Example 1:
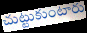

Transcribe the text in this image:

చుట్టుకుంటారు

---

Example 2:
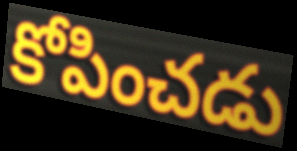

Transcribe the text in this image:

కోపించడు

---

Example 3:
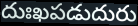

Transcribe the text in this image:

దుఃఖపడుదురు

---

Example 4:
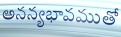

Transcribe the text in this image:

అనన్యభావముతో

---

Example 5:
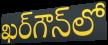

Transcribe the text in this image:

ఖర్‌గౌన్‌లో